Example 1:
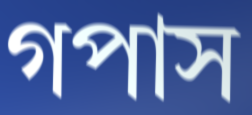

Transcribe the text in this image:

গপাস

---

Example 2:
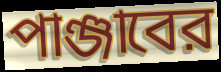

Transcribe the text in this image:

পাঞ্জাবের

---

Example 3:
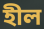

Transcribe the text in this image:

হীল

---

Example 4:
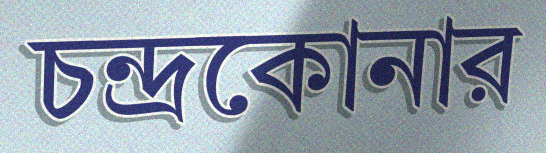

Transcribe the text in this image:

চন্দ্রকোনার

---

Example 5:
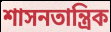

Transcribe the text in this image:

শাসনতান্ত্রিক